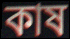
কাষ